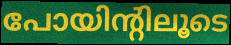
പോയിന്റിലൂടെ